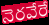
నెరవేరే